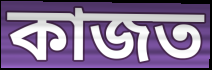
কাজত